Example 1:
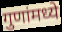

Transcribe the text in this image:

गुणांमध्ये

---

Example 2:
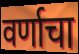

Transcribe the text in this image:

वर्णाचा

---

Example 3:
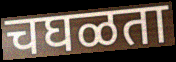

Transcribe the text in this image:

चघळता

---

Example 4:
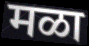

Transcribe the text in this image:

मळा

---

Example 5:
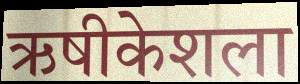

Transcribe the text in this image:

ऋषीकेशला